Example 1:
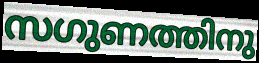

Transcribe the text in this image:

സഗുണത്തിനു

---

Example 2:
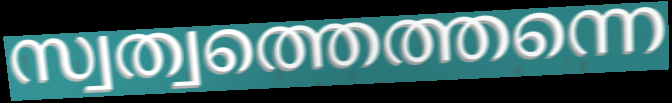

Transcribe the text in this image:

സ്വത്വത്തെത്തന്നെ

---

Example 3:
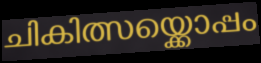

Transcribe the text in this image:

ചികിത്സയ്ക്കൊപ്പം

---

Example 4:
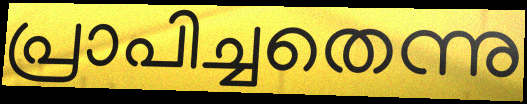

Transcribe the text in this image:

പ്രാപിച്ചതെന്നു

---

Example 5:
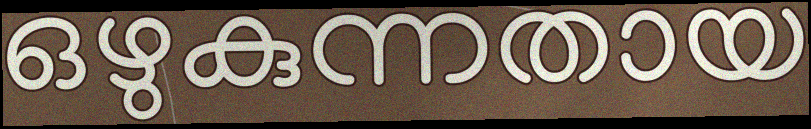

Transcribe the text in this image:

ഒഴുകുന്നതായ